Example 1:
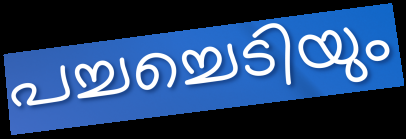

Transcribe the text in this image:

പച്ചച്ചെടിയും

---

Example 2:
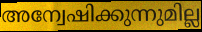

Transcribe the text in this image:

അന്വേഷിക്കുന്നുമില്ല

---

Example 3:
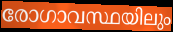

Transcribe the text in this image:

രോഗാവസ്ഥയിലും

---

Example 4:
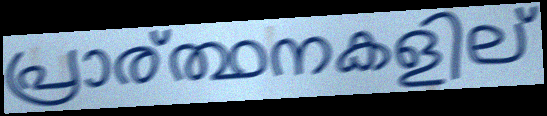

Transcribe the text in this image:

പ്രാര്ത്ഥനകളില്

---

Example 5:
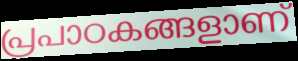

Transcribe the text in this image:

പ്രപാഠകങ്ങളാണ്